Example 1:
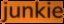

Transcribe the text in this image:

junkie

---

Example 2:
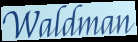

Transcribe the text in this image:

Waldman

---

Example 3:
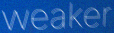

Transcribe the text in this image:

weaker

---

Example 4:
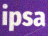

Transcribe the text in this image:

ipsa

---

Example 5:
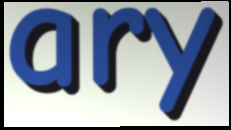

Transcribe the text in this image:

ary